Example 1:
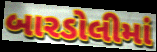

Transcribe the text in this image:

બારડોલીમાં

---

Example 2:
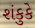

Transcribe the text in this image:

શંકુકે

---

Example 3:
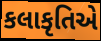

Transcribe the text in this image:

કલાકૃતિએ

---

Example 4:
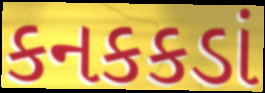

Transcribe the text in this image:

કનકકડાં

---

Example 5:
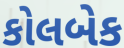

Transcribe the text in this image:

કોલબેક